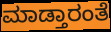
ಮಾಡ್ತಾರಂತೆ